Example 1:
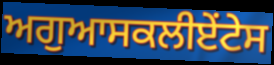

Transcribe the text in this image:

ਅਗੁਆਸਕਲੀਏਂਟੇਸ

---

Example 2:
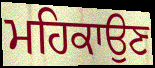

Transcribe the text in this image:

ਮਹਿਕਾਉਣ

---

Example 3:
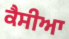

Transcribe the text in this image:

ਕੈਸੀਆ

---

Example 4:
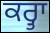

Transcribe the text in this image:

ਕਰ੍ਤਾ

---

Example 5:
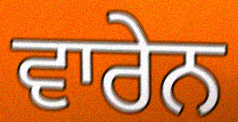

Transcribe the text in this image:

ਵਾਰੇਨ